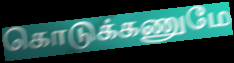
கொடுக்கணுமே